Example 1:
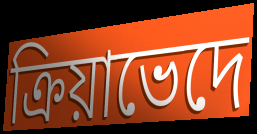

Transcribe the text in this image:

ক্রিয়াভেদে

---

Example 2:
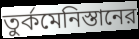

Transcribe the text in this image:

তুর্কমেনিস্তানের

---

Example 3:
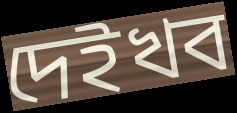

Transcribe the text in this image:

দেইখব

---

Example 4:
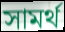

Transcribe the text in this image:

সামর্থ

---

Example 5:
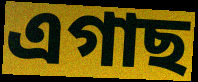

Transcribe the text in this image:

এগাছ